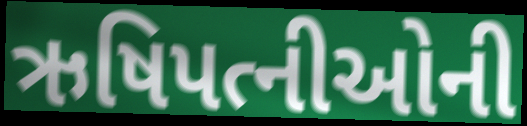
ઋષિપત્નીઓની